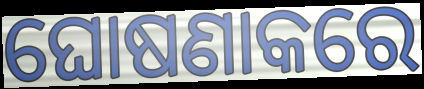
ଘୋଷଣାକରେ